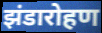
झंडारोहण